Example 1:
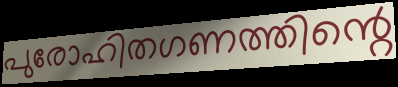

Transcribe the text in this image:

പുരോഹിതഗണത്തിന്റെ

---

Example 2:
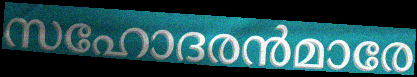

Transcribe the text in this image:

സഹോദരൻമാരേ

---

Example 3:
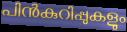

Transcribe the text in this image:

പിൻകുറിപ്പുകളും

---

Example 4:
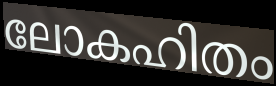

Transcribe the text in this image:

ലോകഹിതം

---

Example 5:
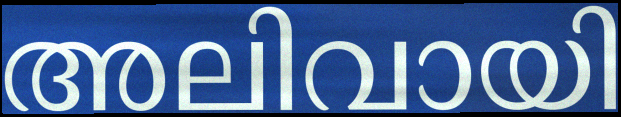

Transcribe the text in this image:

അലിവായി